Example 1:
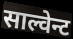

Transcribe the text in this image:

साल्वेन्ट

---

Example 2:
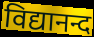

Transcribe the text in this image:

विद्यानन्द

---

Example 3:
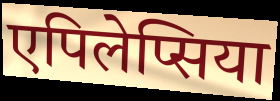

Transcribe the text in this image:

एपिलेप्सिया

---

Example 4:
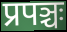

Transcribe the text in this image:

प्रपञ्चः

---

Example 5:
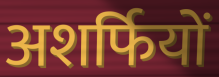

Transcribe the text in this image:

अशर्फियों